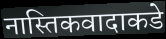
नास्तिकवादाकडे